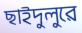
ছাইদুলুৱে